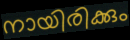
നായിരിക്കും